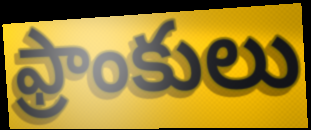
ఫ్రాంకులు